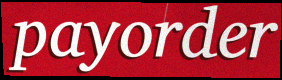
payorder